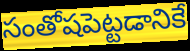
సంతోషపెట్టడానికే